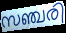
സഞ്ചരി